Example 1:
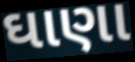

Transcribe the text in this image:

ઘાણા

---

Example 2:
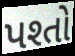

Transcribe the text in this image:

પશ્તો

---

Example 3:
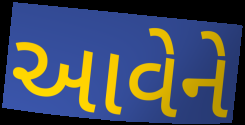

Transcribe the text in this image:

આવેને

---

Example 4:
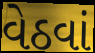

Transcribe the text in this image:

વેઠવાં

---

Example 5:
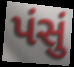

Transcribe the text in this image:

પંસું